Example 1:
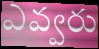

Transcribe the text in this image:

ఎవ్వరు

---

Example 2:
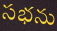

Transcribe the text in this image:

సభను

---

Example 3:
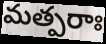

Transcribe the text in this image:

మత్పరాః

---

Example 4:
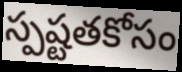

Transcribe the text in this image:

స్పష్టతకోసం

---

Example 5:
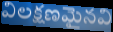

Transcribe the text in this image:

విలక్షణమైనవి